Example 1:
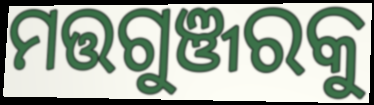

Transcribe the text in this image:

ମତ୍ତଗୁଞ୍ଜରକୁ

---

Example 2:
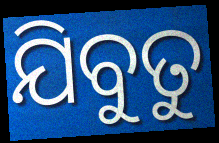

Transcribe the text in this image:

ଯିବୁତୁ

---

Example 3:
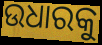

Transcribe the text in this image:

ଉଧାରକୁ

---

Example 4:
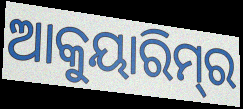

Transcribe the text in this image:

ଆକୁୟାରିମ୍‌ର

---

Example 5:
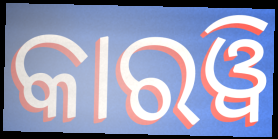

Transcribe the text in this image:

କାରୱି